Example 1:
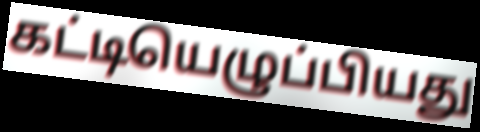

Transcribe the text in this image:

கட்டியெழுப்பியது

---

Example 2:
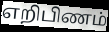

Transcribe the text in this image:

எறிபிணம்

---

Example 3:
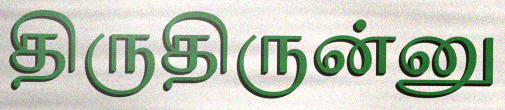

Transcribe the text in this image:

திருதிருன்னு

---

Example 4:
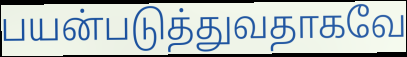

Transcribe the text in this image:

பயன்படுத்துவதாகவே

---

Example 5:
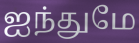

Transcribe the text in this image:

ஐந்துமே